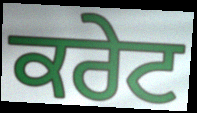
ਕਰੇਟ